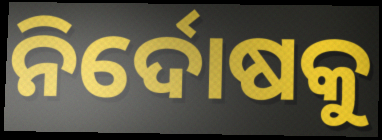
ନିର୍ଦୋଷକୁ